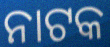
ନାଟକ